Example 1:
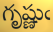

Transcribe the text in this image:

గృష్ణుఁ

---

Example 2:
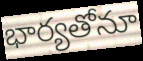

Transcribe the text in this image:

భార్యతోనూ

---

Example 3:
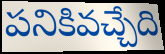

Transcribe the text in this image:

పనికివచ్చేది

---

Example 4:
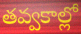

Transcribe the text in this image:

తవ్వకాల్లో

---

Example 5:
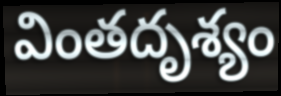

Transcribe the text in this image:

వింతదృశ్యం